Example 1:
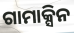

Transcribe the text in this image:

ଗାମାକ୍ସିନ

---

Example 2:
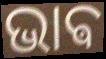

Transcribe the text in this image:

ଭାଵ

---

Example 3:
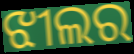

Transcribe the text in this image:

ଝୀଲର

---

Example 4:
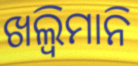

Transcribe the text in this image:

ଖଲ୍ୱିମାନି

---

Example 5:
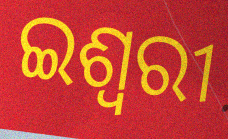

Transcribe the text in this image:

ଇଶ୍ୱରୀ